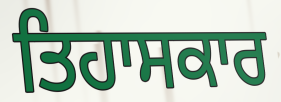
ਤਿਹਾਸਕਾਰ